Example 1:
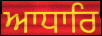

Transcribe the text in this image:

ਆਧਾਰਿ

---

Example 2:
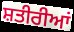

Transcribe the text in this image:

ਸ਼ਤੀਰੀਆਂ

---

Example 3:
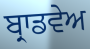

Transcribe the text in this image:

ਬ੍ਰਾਡਵੇਅ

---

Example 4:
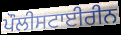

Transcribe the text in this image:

ਪੌਲੀਸਟਾਈਰੀਨ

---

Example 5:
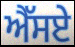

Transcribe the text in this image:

ਐੱਸਏ